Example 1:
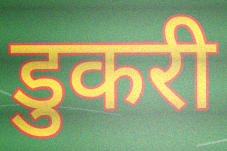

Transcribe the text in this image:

डुकरी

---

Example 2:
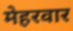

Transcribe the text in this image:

मेहरवार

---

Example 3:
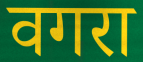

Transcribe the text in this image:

वगरा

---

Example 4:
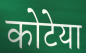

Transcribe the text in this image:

कोटेया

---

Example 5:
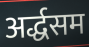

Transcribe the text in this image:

अर्द्धसम